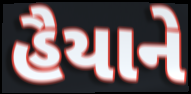
હૈયાને